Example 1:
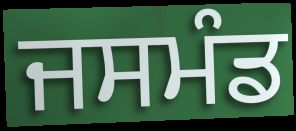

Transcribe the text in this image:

ਜਸਮੰਡ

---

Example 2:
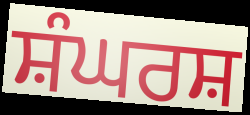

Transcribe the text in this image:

ਸ਼ੰਘਰਸ਼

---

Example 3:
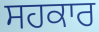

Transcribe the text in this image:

ਸਹਕਾਰ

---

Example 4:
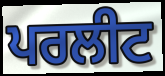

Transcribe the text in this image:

ਪਰਲੀਟ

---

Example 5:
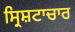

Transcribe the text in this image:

ਸ੍ਰਿਸ਼ਟਾਚਾਰ